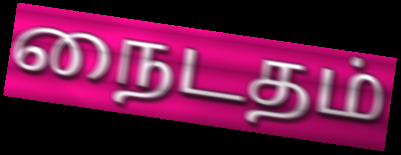
நைடதம்